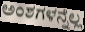
ಅಂಶಗಳನ್ನೆಲ್ಲ